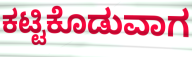
ಕಟ್ಟಿಕೊಡುವಾಗ